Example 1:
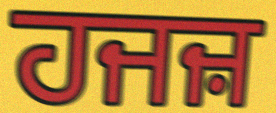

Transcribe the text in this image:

ਹਜਜ਼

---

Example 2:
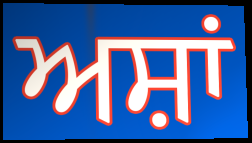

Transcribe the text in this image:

ਅਸ਼ਾਂ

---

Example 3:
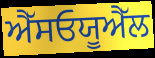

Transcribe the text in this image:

ਐੱਸਓਯੂਐੱਲ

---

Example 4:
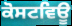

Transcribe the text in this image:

ਕੋਸਟਵਿਊ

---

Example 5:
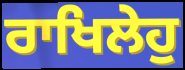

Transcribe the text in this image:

ਰਾਖਿਲੇਹੁ